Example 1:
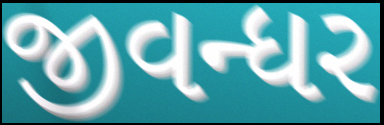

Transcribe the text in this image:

જીવન્ધર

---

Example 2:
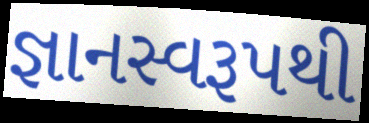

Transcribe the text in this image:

જ્ઞાનસ્વરૂપથી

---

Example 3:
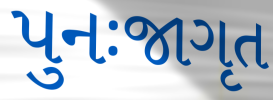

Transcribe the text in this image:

પુનઃજાગૃત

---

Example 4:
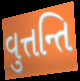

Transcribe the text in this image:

વુત્તન્તિ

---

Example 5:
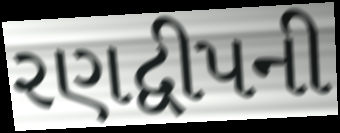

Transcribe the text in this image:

રણદ્વીપની